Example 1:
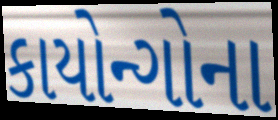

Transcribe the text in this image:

કાયોન્ગોના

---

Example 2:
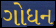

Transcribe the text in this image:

ગોધન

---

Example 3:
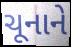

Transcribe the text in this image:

ચૂનાને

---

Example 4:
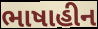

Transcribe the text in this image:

ભાષાહીન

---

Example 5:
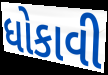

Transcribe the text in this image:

ધોકાવી